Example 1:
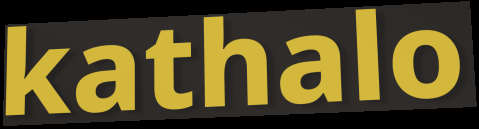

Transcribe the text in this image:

kathalo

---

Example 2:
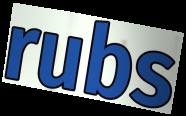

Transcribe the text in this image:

rubs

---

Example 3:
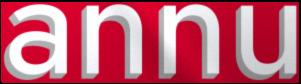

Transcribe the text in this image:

annu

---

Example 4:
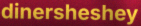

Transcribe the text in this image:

dinersheshey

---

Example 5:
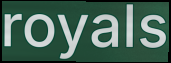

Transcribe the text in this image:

royals